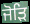
ਜੋੜਿ